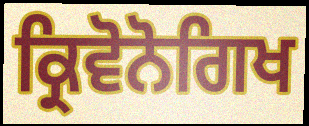
ਕ੍ਰਿਵੋਨੋਗਿਖ